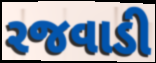
રજવાડી